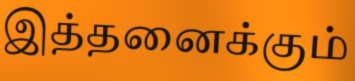
இத்தனைக்கும்